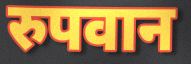
रुपवान